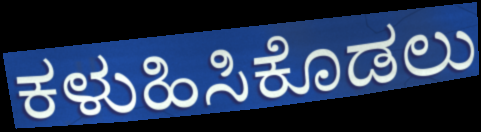
ಕಳುಹಿಸಿಕೊಡಲು